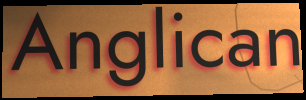
Anglican